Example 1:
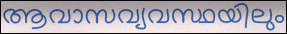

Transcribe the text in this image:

ആവാസവ്യവസ്ഥയിലും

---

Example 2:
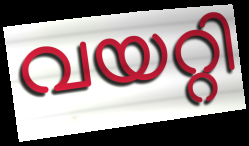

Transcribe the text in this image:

വയറ്റി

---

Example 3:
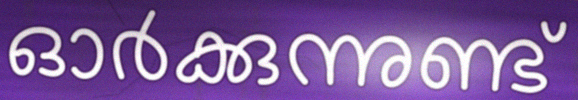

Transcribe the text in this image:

ഓർക്കുന്നുണ്ട്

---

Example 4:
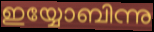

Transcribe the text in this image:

ഇയ്യോബിന്നു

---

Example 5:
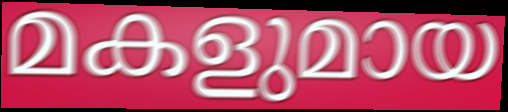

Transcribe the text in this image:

മകളുമായ